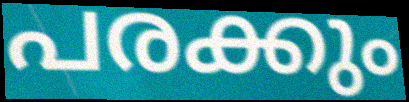
പരക്കും